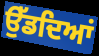
ਉੱਡਦਿਆਂ